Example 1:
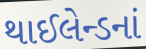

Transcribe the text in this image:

થાઈલેન્ડનાં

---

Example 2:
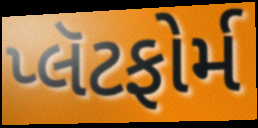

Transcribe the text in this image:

પ્લૅટફોર્મ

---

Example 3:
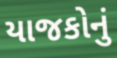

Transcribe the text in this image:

યાજકોનું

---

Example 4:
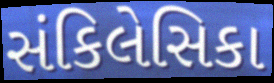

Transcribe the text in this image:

સંકિલેસિકા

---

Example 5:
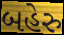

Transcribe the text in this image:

બહેરુ